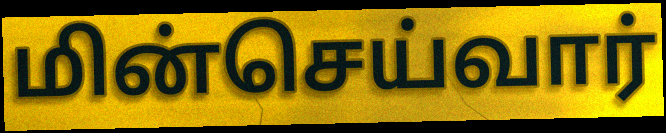
மின்செய்வார்